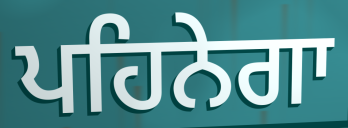
ਪਹਿਨੇਗਾ